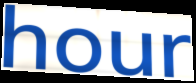
hour